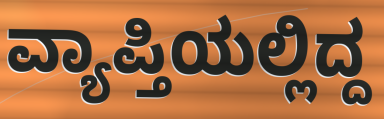
ವ್ಯಾಪ್ತಿಯಲ್ಲಿದ್ದ